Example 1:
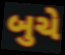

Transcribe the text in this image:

બુચે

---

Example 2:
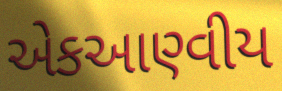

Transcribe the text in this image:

એકઆણ્વીય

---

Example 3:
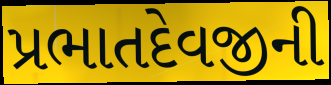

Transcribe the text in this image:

પ્રભાતદેવજીની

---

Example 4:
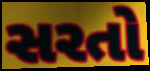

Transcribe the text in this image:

સરતો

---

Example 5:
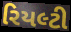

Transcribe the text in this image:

રિયલ્ટી